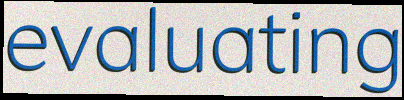
evaluating